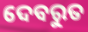
ଦେବରୁତ